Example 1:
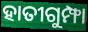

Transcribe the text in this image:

ହାତୀଗୁମ୍ଫା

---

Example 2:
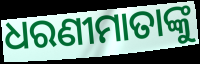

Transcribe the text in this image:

ଧରଣୀମାତାଙ୍କୁ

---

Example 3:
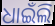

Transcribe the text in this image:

ଧାଇଁଲି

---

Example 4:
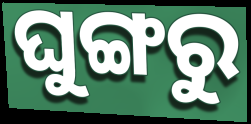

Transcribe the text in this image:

ଘୁଙ୍ଗରୁ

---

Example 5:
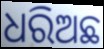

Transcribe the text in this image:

ଧରିଅଛ